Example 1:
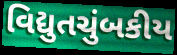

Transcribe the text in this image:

વિદ્યુતચુંબકીય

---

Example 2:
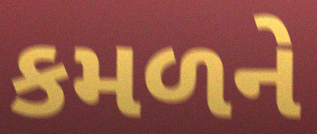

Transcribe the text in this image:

કમળને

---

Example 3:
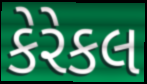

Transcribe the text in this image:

કેરેકલ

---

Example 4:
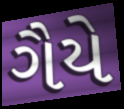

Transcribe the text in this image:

ગૈયે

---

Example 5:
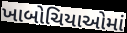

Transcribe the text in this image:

ખાબોચિયાઓમાં